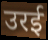
उरई